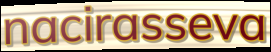
nacirasseva